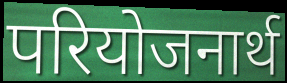
परियोजनार्थ